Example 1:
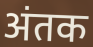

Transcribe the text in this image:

अंतक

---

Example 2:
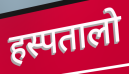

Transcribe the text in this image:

हस्पतालो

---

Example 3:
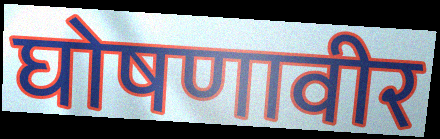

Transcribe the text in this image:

घोषणावीर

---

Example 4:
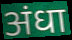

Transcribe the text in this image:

अंधा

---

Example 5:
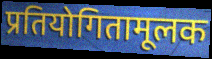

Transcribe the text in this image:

प्रतियोगितामूलक